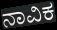
ನಾವಿಕ